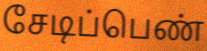
சேடிப்பெண்